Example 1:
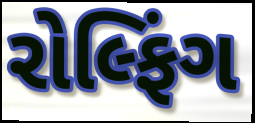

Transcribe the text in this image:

રોલ્ફિંગ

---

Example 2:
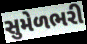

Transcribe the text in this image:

સુમેળભરી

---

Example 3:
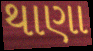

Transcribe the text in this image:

થાણા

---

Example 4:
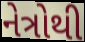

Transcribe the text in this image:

નેત્રોથી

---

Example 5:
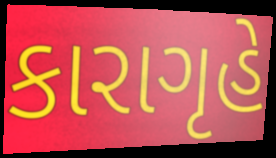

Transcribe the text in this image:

કારાગૃહે